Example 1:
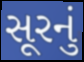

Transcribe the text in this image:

સૂરનું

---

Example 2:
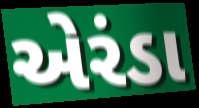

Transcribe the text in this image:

એરંડા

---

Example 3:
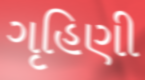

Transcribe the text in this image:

ગૃહિણી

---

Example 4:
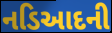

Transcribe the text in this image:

નડિઆદની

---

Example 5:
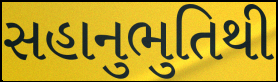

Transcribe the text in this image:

સહાનુભુતિથી